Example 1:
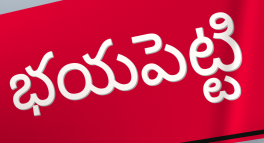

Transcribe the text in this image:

భయపెట్టి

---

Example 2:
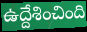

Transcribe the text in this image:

ఉద్దేశించింది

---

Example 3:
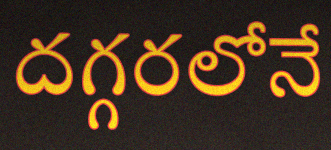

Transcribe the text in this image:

దగ్గరలోనే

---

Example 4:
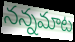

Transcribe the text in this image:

నన్నమాట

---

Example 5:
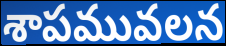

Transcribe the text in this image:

శాపమువలన